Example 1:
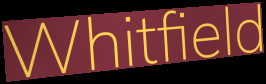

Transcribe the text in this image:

Whitfield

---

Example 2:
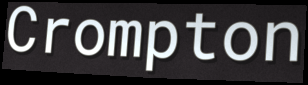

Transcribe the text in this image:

Crompton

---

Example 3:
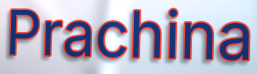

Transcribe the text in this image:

Prachina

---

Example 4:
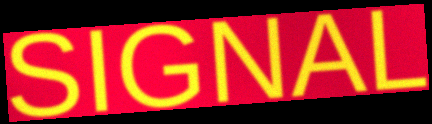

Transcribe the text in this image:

SIGNAL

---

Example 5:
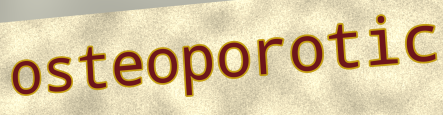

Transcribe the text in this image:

osteoporotic